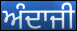
ਅੰਦਾਜੀ